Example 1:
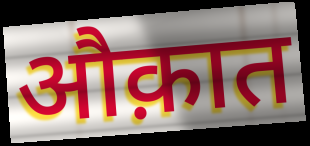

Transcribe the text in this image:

औक़ात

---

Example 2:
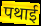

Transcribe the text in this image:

पथाई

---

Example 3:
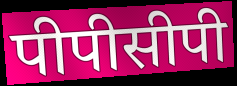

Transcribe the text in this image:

पीपीसीपी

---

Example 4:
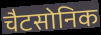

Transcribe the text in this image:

चैटसोनिक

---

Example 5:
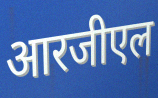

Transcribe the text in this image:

आरजीएल